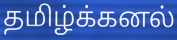
தமிழ்க்கனல்